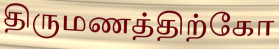
திருமணத்திற்கோ